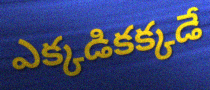
ఎక్కడికక్కడే